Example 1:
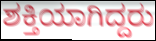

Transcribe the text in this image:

ಶಕ್ತಿಯಾಗಿದ್ದರು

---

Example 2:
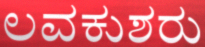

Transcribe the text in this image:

ಲವಕುಶರು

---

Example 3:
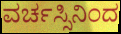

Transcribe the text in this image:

ವರ್ಚಸ್ಸಿನಿಂದ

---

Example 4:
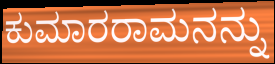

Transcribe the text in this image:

ಕುಮಾರರಾಮನನ್ನು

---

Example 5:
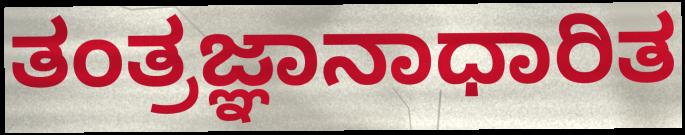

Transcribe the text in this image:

ತಂತ್ರಜ್ಞಾನಾಧಾರಿತ